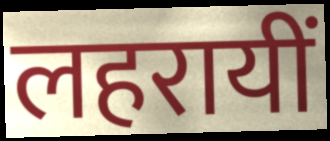
लहरायीं